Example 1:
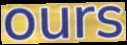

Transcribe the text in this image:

ours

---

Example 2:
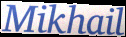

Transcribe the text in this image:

Mikhail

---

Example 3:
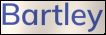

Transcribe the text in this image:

Bartley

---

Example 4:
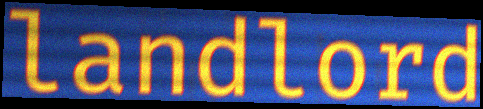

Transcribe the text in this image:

landlord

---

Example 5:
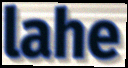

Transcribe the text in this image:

lahe